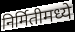
निर्मितीमध्ये